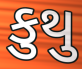
કુથુ